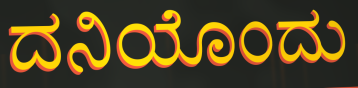
ದನಿಯೊಂದು